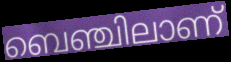
ബെഞ്ചിലാണ്